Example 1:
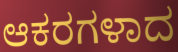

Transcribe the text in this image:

ಆಕರಗಳಾದ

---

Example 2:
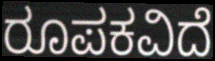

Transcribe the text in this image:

ರೂಪಕವಿದೆ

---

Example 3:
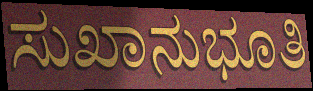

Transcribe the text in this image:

ಸುಖಾನುಭೂತಿ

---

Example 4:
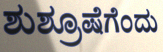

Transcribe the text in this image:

ಶುಶ್ರೂಷೆಗೆಂದು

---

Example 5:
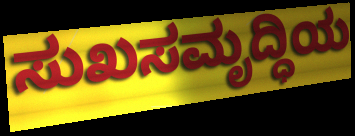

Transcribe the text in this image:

ಸುಖಸಮೃದ್ಧಿಯ